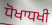
ਧੋਖਾਧਖੀ